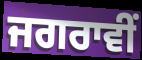
ਜਗਰਾਵੀਂ